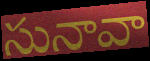
సునావా